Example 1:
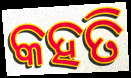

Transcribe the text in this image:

କହତି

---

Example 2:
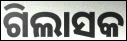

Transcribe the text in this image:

ଗିଲାସକ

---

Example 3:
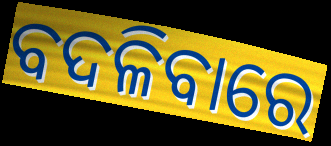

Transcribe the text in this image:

ବଦଳିବାରେ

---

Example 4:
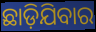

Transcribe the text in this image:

ଛାଡ଼ିଯିବାର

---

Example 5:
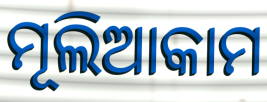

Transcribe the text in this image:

ମୂଲିଆକାମ